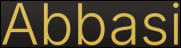
Abbasi